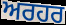
ਅਰਹਰ